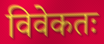
विवेकतः